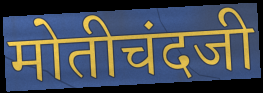
मोतीचंदजी